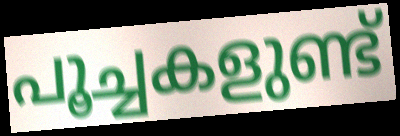
പൂച്ചകളുണ്ട്